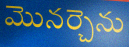
మొనర్చెను